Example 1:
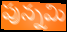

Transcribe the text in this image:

పున్నమి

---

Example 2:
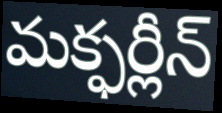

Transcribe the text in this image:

మక్ఫర్లీన్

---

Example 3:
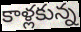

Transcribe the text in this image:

కాళ్లకున్న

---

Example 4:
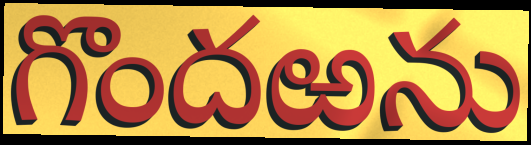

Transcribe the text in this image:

గొందఱను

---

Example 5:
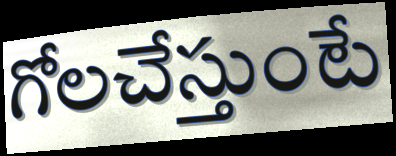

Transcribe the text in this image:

గోలచేస్తుంటే